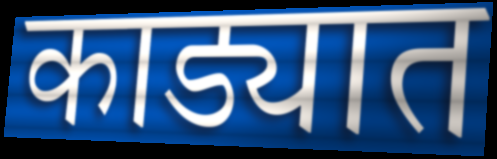
काड्यात